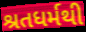
શ્રતધર્મથી